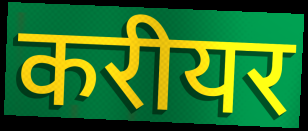
करीयर